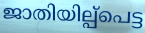
ജാതിയില്പ്പെട്ട